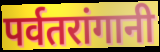
पर्वतरांगानी